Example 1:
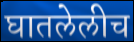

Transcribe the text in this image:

घातलेलीच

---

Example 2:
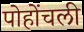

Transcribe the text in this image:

पोहोंचली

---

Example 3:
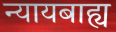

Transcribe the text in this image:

न्यायबाह्य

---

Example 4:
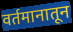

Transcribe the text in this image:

वर्तमानातून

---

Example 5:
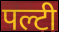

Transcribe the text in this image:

पल्टी